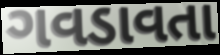
ગવડાવતા